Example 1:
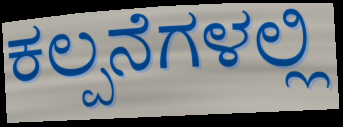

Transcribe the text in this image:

ಕಲ್ಪನೆಗಳಲ್ಲಿ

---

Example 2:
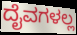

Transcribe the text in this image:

ದೈವಗಳಲ್ಲ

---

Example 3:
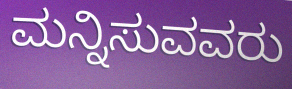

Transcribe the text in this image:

ಮನ್ನಿಸುವವರು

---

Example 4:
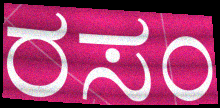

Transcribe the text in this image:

ರಸಂ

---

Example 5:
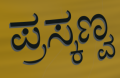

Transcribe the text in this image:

ಪ್ರಸ್ಕಣ್ವ